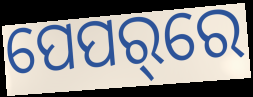
ପେପର୍‌ରେ